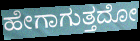
ಹೇಗಾಗುತ್ತದೋ